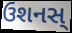
ઉશનસ્